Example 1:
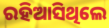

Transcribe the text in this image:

ରହିଆସିଥିଲେ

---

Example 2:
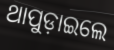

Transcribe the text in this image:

ଥାପୁଡ଼ାଇଲେ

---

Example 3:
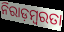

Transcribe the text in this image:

ନିରାଡ଼ମ୍ବରତା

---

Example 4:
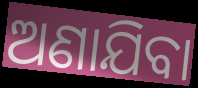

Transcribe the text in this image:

ଅଣାଯିବା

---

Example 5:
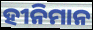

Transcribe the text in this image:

ହୀନିମାନ